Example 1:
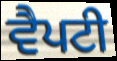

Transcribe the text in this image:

ਵੈਪਟੀ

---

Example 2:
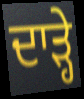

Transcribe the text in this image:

ਦਾੜ੍ਹੇ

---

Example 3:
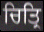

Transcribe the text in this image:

ਚਿਤ੍ਰਿ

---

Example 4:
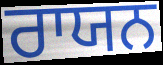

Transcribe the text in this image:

ਰਾਯਨ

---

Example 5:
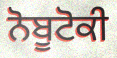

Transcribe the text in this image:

ਨੋਬੂਟੋਕੀ